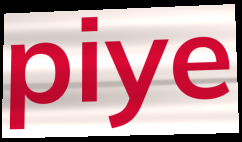
piye